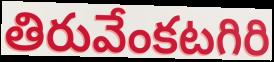
తిరువేంకటగిరి